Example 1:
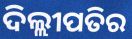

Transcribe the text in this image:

ଦିଲ୍ଲୀପତିର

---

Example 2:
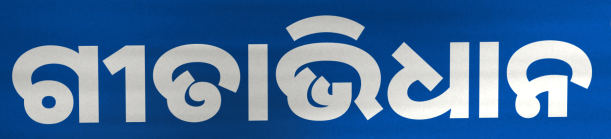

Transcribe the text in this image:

ଗୀତାଭିଧାନ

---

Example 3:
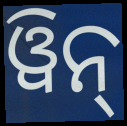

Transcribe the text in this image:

ୱିନ୍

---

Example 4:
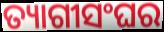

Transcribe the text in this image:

ତ୍ୟାଗୀସଂଘର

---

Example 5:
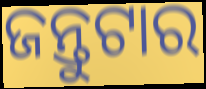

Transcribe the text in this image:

ଜନ୍ତୁଟାର